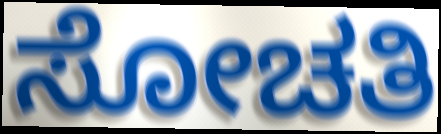
ಸೋಚತಿ